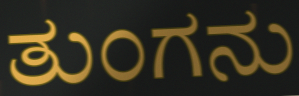
ತುಂಗನು